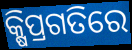
କ୍ଷିପ୍ରଗତିରେ